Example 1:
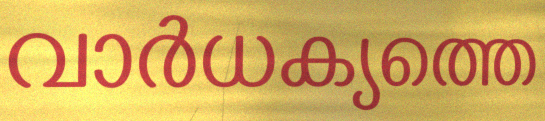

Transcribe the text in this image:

വാർധക്യത്തെ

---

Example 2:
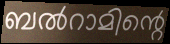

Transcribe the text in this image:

ബൽറാമിന്റെ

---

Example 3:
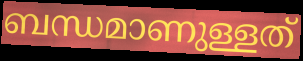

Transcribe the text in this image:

ബന്ധമാണുള്ളത്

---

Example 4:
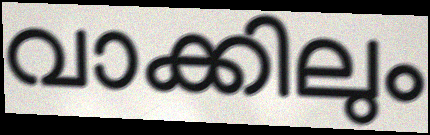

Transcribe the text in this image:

വാക്കിലും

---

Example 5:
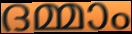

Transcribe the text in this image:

ദമ്മാം